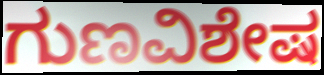
ಗುಣವಿಶೇಷ